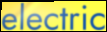
electric